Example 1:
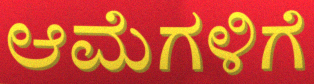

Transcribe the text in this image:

ಆಮೆಗಳಿಗೆ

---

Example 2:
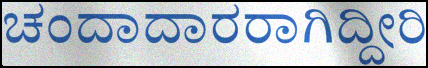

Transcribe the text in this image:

ಚಂದಾದಾರರಾಗಿದ್ದೀರಿ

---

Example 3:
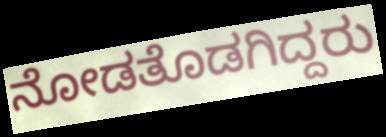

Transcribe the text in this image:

ನೋಡತೊಡಗಿದ್ದರು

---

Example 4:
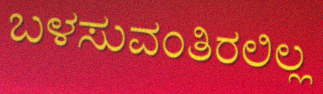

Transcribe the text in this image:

ಬಳಸುವಂತಿರಲಿಲ್ಲ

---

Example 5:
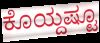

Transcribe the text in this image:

ಕೊಯ್ದಷ್ಟೂ